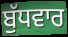
ਬੁੱਧਵਾਰ